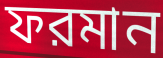
ফরমান